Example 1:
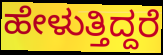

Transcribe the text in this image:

ಹೇಳುತ್ತಿದ್ದರೆ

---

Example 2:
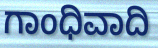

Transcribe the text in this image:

ಗಾಂಧಿವಾದಿ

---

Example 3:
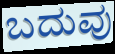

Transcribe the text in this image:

ಬದುವು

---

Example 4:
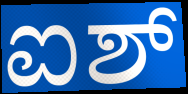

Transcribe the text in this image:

ಐಶ್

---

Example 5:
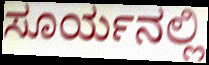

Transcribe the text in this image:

ಸೂರ್ಯನಲ್ಲಿ